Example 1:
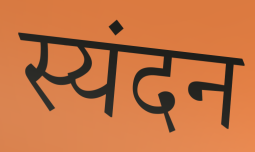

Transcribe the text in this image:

स्यंदन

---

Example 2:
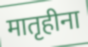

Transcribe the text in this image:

मातृहीना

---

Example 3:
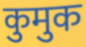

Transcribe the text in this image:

कुमुक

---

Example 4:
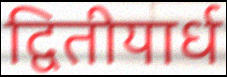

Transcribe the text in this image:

द्वितीयार्ध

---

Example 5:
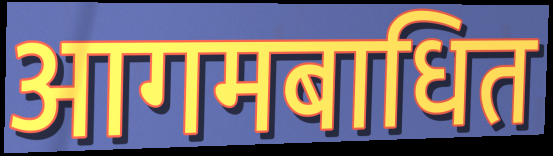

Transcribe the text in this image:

आगमबाधित